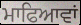
ਮਾਫਿਆਵਾਂ